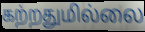
கற்றதுமில்லை